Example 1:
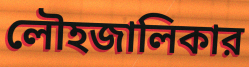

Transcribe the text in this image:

লৌহজালিকার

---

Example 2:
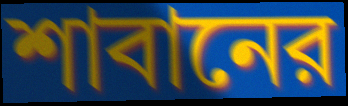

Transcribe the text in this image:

শাবানের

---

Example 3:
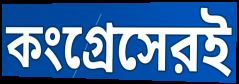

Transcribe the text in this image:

কংগ্রেসেরই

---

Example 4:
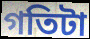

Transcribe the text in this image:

গতিটা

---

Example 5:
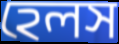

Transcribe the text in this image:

হেলস